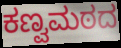
ಕಣ್ವಮಠದ